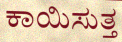
ಕಾಯಿಸುತ್ತ